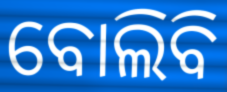
ବୋଲିବି